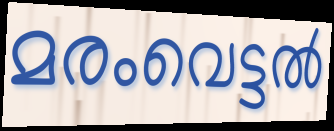
മരംവെട്ടൽ